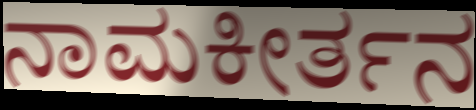
ನಾಮಕೀರ್ತನ